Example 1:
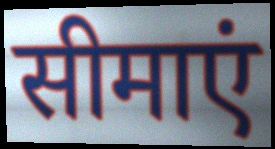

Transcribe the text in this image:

सीमाएं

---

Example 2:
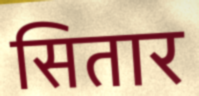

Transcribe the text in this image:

सितार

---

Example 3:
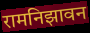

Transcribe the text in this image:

रामनिझावन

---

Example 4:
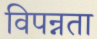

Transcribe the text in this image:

विपन्नता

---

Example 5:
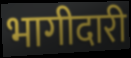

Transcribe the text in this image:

भागीदारी